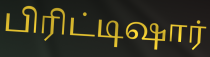
பிரிட்டிஷார்